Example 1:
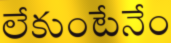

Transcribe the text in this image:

లేకుంటేనేం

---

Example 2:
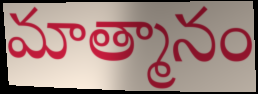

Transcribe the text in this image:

మాత్మానం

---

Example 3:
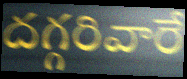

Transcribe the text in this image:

దగ్గరివారే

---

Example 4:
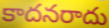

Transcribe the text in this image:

కాదనరాదు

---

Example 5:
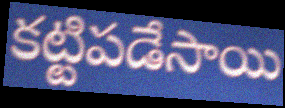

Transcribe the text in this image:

కట్టిపడేసాయి